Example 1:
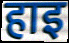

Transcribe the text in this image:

हाइ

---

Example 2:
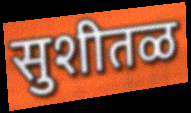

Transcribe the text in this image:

सुशीतळ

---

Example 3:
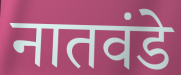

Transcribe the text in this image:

नातवंडे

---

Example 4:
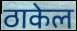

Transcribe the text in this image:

ठाकेल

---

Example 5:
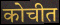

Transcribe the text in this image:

कोचीत